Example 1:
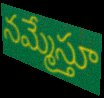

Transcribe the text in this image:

నమ్మేస్తూ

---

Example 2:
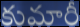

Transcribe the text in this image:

కుమారీ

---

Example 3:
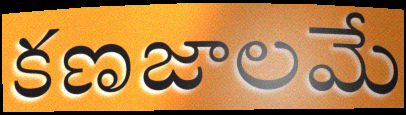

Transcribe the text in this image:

కణజాలమే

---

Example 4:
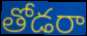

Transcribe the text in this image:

తోడరా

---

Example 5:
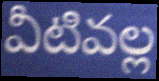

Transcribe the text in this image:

వీటివల్ల